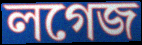
লগেজ